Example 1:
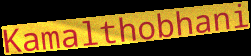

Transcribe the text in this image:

Kamalthobhani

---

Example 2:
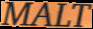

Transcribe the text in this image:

MALT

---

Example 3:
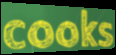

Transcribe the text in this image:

cooks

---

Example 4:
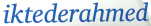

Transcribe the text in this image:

iktederahmed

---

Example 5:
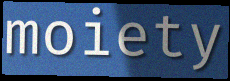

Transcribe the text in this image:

moiety